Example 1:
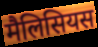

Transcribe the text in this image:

मैलिसियस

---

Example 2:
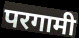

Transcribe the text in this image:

परगामी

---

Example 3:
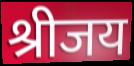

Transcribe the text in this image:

श्रीजय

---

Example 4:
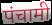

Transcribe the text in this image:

पंचामी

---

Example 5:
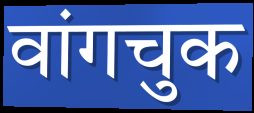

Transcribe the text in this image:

वांगचुक